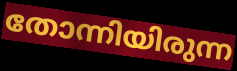
തോന്നിയിരുന്ന